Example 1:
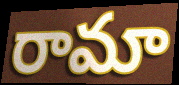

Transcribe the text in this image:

రామా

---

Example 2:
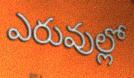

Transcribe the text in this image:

ఎరువుల్లో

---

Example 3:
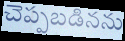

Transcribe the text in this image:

చెప్పబడినను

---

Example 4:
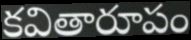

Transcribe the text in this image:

కవితారూపం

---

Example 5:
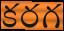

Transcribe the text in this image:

కరగ